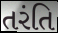
તરંતિ